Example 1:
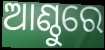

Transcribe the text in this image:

ଆଣ୍ଠୁରେ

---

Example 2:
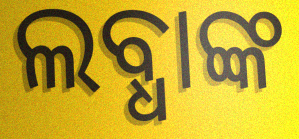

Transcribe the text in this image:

ଲବ୍ଧାଙ୍କ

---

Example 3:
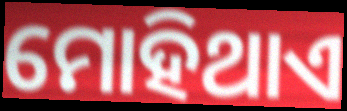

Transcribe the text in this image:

ମୋହିଥାଏ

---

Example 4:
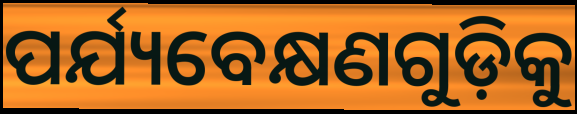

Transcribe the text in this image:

ପର୍ଯ୍ୟବେକ୍ଷଣଗୁଡ଼ିକୁ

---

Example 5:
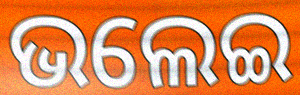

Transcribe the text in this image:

ଭଲେଇ